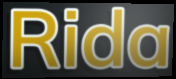
Rida